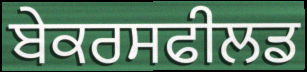
ਬੇਕਰਸਫੀਲਡ